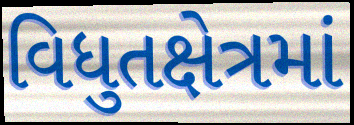
વિધુતક્ષેત્રમાં